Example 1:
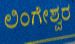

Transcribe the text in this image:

ಲಿಂಗೇಶ್ವರ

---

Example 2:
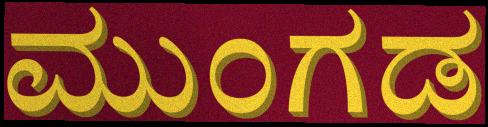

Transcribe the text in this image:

ಮುಂಗಡ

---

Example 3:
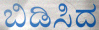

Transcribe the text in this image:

ಬಿಡಿಸಿದ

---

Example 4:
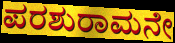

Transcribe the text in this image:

ಪರಶುರಾಮನೇ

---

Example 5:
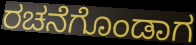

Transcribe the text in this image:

ರಚನೆಗೊಂಡಾಗ